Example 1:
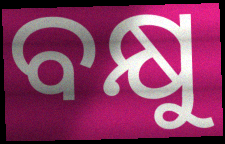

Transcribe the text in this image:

ବକ୍ଷୁ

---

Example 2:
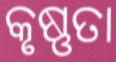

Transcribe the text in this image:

କୃଷ୍ଣତା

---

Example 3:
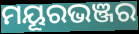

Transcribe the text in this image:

ମୟୂରଭଞ୍ଜର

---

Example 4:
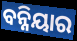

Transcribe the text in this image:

ବନ୍ନିୟାର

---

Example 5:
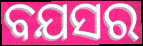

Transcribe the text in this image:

ବଯସର